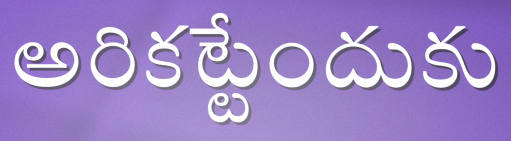
అరికట్టేందుకు